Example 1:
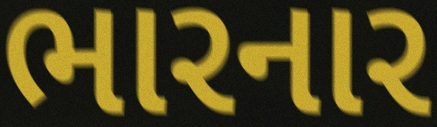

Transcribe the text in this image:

ભારનાર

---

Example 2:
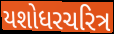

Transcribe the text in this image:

યશોધરચરિત્ર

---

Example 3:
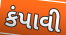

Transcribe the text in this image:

કંપાવી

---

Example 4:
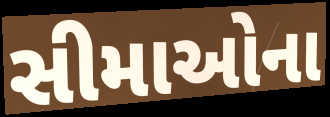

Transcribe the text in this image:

સીમાઓના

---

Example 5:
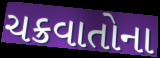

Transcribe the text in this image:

ચક્રવાતોના